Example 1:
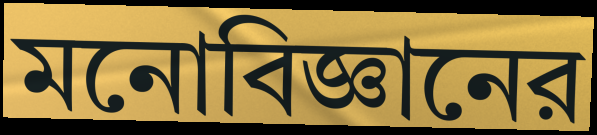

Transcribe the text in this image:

মনোবিজ্ঞানের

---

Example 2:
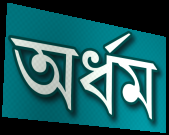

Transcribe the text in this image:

অর্ধম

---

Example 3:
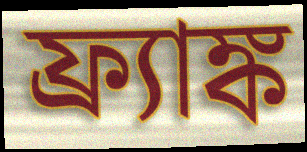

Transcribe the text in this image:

ফ্র্যাঙ্ক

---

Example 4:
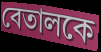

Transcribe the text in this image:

বেতালকে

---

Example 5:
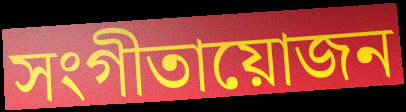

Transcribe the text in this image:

সংগীতায়োজন